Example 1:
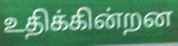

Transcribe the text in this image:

உதிக்கின்றன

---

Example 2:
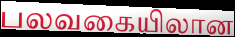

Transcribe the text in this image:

பலவகையிலான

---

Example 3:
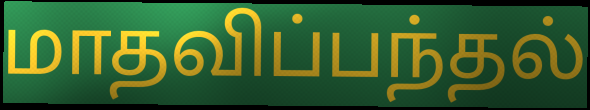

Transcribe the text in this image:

மாதவிப்பந்தல்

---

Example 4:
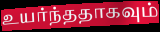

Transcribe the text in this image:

உயர்ந்ததாகவும்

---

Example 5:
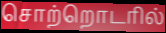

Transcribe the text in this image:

சொற்றொடரில்